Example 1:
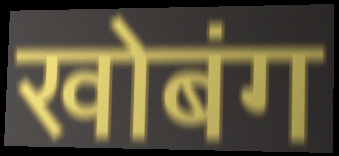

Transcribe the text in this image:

खोबंग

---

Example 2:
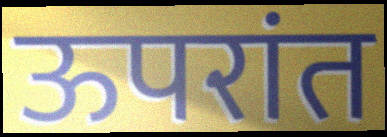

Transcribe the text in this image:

ऊपरांत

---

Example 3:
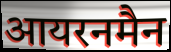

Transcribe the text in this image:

आयरनमैन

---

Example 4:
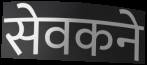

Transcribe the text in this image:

सेवकने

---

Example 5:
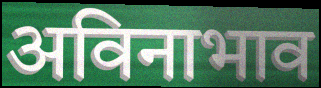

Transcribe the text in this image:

अविनाभाव